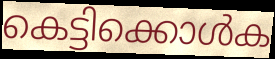
കെട്ടിക്കൊൾക